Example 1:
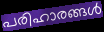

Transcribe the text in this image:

പരിഹാരങ്ങൾ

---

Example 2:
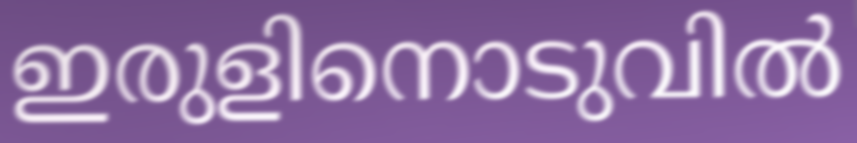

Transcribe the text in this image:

ഇരുളിനൊടുവിൽ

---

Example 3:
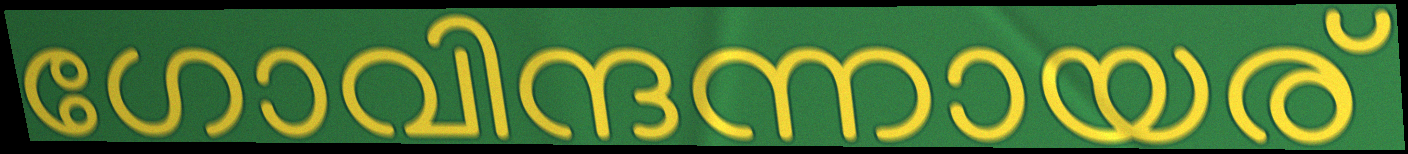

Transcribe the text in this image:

ഗോവിന്ദന്നായര്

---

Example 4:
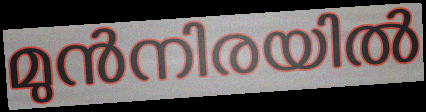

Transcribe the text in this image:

മുൻനിരയിൽ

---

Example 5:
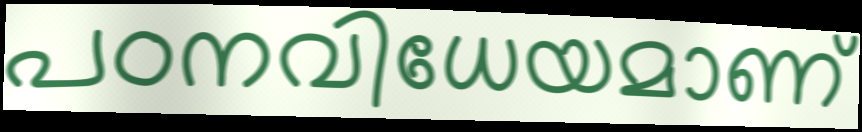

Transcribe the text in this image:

പഠനവിധേയമാണ്